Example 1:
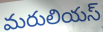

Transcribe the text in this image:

మరులియస్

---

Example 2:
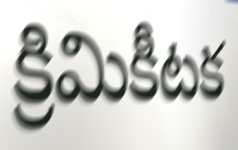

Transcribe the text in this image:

క్రిమికీటక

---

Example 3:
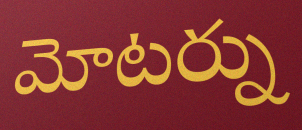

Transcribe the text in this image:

మోటర్ను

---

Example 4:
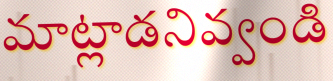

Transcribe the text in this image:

మాట్లాడనివ్వండి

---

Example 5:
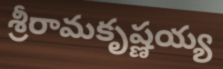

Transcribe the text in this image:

శ్రీరామకృష్ణయ్య